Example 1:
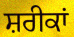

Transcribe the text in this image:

ਸ਼ਰੀਕਾਂ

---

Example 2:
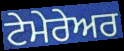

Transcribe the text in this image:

ਟੇਮੇਰੇਅਰ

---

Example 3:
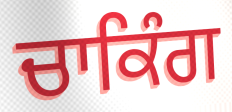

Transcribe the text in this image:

ਚਾਕਿੰਗ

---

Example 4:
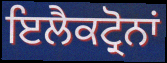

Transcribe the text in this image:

ਇਲੈਕਟ੍ਰੋਨਾਂ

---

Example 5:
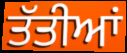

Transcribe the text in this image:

ਤੱਤੀਆਂ